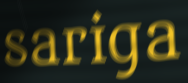
sariga